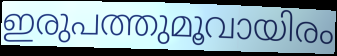
ഇരുപത്തുമൂവായിരം